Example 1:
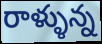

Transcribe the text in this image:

రాళ్ళున్న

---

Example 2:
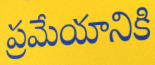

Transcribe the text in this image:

ప్రమేయానికి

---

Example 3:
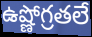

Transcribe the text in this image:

ఉష్ణోగ్రతలే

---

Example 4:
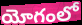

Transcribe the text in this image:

యోగంలో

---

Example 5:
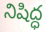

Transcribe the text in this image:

నిషిద్ధ